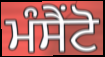
ਮੰਸੈਂਟੋ